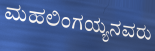
ಮಹಲಿಂಗಯ್ಯನವರು